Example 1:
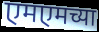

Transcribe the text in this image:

एमएमच्या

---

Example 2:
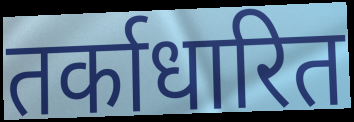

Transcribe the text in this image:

तर्काधारित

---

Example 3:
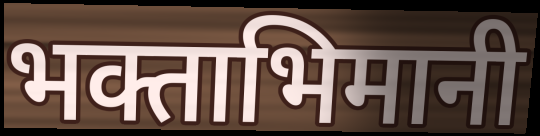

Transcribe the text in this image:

भक्ताभिमानी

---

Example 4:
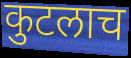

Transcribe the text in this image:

कुटलाच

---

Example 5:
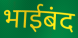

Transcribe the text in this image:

भाईबंद